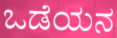
ಒಡೆಯನ